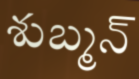
శుబ్మన్